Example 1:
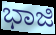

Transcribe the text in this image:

ಭಾಜಿ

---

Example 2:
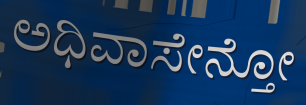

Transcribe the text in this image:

ಅಧಿವಾಸೇನ್ತೋ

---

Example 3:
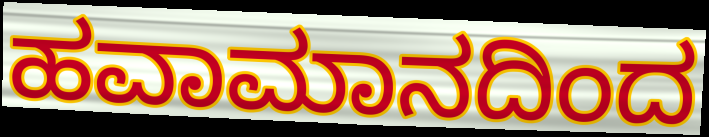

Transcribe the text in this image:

ಹವಾಮಾನದಿಂದ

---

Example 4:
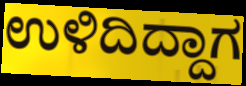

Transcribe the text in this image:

ಉಳಿದಿದ್ದಾಗ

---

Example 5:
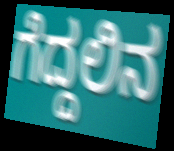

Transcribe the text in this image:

ಗೆದ್ದಲಿನ